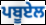
ਪਬੂਏਲ